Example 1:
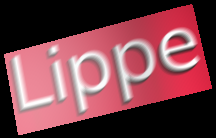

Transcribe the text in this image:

Lippe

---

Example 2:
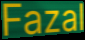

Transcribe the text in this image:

Fazal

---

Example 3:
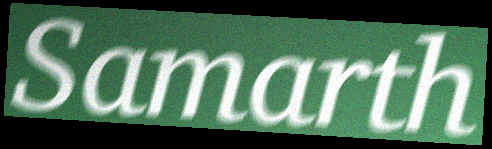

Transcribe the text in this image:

Samarth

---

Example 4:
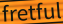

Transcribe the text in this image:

fretful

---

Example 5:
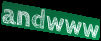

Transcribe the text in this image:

andwww